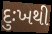
દુઃખથી